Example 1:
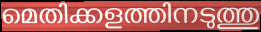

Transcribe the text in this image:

മെതിക്കളത്തിനടുത്തു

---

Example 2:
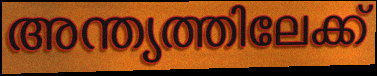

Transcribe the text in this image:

അന്ത്യത്തിലേക്ക്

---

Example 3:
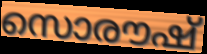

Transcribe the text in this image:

സൊരൗഷ്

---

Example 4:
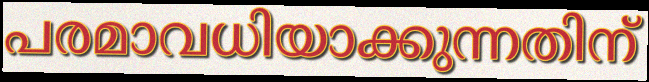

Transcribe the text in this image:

പരമാവധിയാക്കുന്നതിന്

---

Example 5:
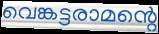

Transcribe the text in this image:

വെങ്കട്ടരാമന്റെ